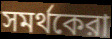
সমর্থকেরা